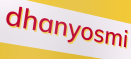
dhanyosmi